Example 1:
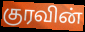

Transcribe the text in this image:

குரவின்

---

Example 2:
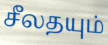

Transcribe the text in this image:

சீலதயும்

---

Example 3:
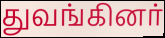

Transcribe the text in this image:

துவங்கினர்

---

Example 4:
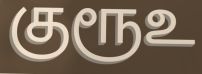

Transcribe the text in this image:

குரூஉ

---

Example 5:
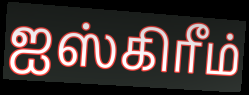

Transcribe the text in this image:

ஐஸ்கிரீம்